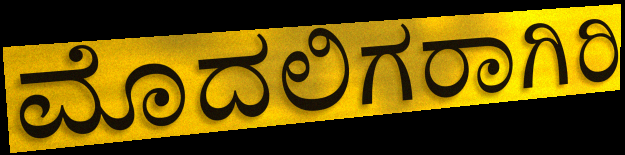
ಮೊದಲಿಗರಾಗಿರಿ